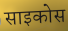
साइकोस